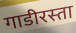
गाडीरस्ता